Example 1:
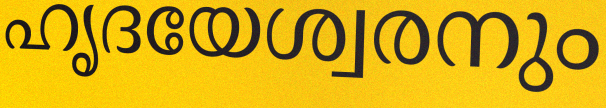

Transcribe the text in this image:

ഹൃദയേശ്വരനും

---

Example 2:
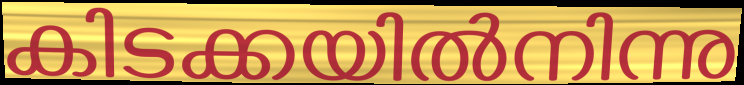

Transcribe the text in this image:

കിടക്കയിൽനിന്നു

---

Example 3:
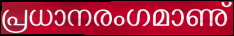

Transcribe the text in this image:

പ്രധാനരംഗമാണു്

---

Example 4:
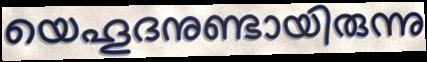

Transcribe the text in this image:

യെഹൂദനുണ്ടായിരുന്നു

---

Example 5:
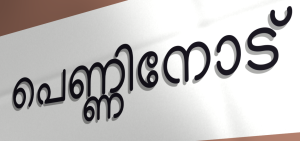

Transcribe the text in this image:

പെണ്ണിനോട്